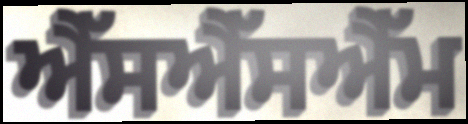
ਐੱਸਐੱਸਐੱਮ